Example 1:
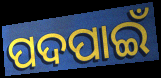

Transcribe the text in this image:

ପଦପାଇଁ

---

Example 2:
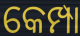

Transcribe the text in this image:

କେମ୍ପା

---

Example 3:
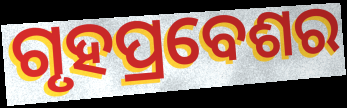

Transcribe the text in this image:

ଗୃହପ୍ରବେଶର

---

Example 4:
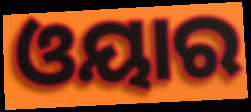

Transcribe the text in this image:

ଓୟାର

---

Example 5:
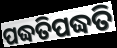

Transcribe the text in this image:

ପଦ୍ଧତିପଦ୍ଧତି